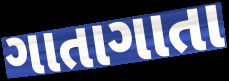
ગાતાગાતા